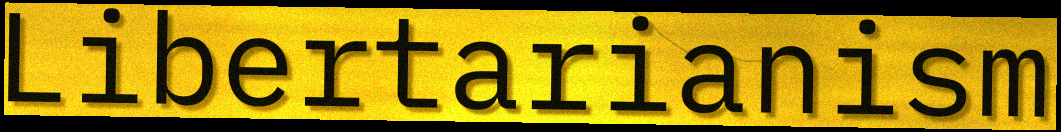
Libertarianism